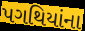
પગથિયાંના